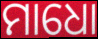
ମାଧୋ